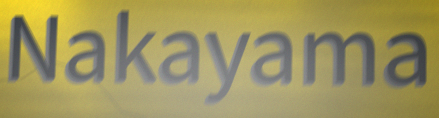
Nakayama